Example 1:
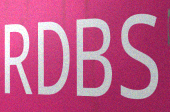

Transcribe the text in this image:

RDBS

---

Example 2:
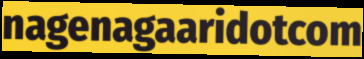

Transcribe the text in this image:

nagenagaaridotcom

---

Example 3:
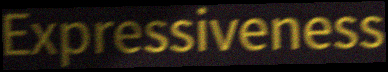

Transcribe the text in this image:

Expressiveness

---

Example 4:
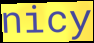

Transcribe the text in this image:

nicy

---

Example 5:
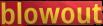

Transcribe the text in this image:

blowout